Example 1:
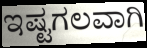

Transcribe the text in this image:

ಇಷ್ಟಗಲವಾಗಿ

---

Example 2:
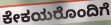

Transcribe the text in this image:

ಕೇಕಯರೊಂದಿಗೆ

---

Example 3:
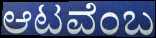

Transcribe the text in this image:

ಆಟವೆಂಬ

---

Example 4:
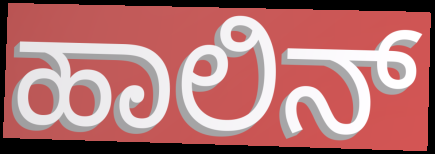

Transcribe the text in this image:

ಹಾಲಿನ್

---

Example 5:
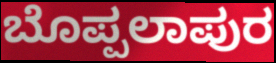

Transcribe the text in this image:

ಬೊಪ್ಪಲಾಪುರ